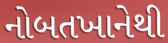
નોબતખાનેથી